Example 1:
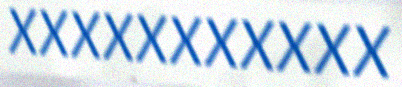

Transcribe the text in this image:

XXXXXXXXXXX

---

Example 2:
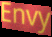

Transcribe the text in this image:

Envy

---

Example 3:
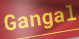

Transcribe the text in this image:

Gangal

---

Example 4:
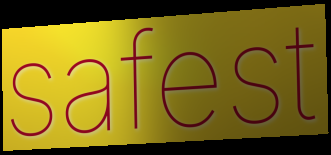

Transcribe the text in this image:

safest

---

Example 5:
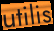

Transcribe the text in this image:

utilis